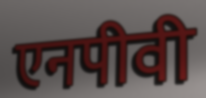
एनपीवी